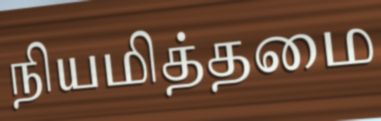
நியமித்தமை